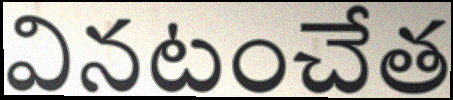
వినటంచేత